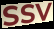
SSV